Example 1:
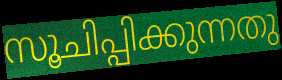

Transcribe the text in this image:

സൂചിപ്പിക്കുന്നതു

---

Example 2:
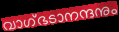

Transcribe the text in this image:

വാഗ്ഭടാനന്ദനും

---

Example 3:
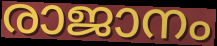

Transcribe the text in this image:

രാജാനം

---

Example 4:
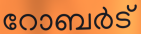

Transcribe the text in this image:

റോബർട്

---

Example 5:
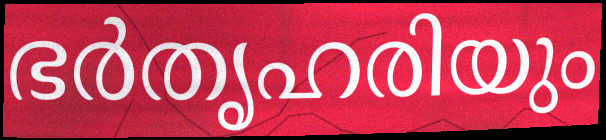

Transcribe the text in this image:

ഭർതൃഹരിയും